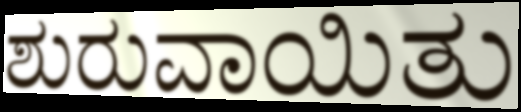
ಶುರುವಾಯಿತು